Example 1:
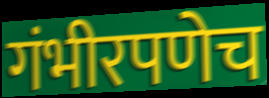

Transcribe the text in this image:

गंभीरपणेच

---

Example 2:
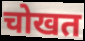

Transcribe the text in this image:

चोखत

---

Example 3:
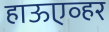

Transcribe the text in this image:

हाऊएव्हर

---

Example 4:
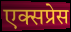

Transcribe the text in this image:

एक्सप्रेस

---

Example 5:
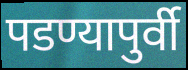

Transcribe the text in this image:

पडण्यापुर्वी